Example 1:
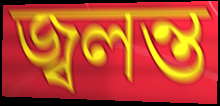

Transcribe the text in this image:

জ্বলন্ত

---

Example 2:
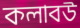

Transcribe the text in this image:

কলাবউ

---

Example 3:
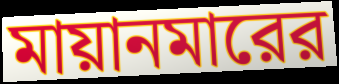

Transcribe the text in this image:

মায়ানমারের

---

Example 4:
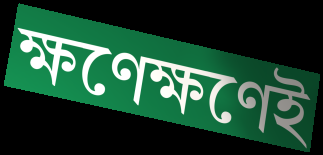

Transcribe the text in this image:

ক্ষণেক্ষণেই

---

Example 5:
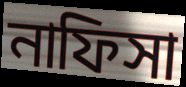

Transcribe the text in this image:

নাফিসা